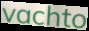
vachto